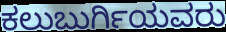
ಕಲುಬುರ್ಗಿಯವರು